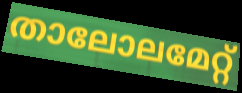
താലോലമേറ്റ്